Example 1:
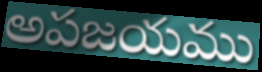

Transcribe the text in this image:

అపజయము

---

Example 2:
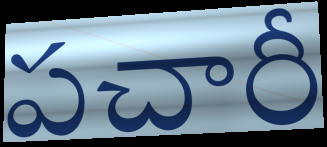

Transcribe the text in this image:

పచారీ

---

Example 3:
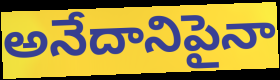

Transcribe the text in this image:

అనేదానిపైనా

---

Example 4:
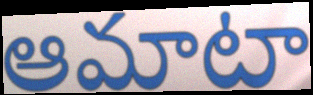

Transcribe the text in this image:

ఆమాటా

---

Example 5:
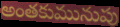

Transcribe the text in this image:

అంతకుమునుపు